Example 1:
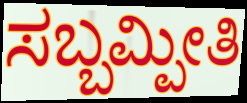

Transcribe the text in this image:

ಸಬ್ಬಮ್ಪೀತಿ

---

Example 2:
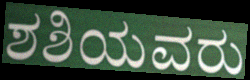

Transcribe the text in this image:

ಶಶಿಯವರು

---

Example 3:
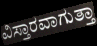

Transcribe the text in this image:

ವಿಸ್ತಾರವಾಗುತ್ತಾ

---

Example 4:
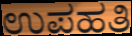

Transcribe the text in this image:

ಉಪಹತಿ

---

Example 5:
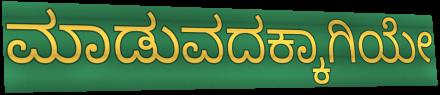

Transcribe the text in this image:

ಮಾಡುವದಕ್ಕಾಗಿಯೇ